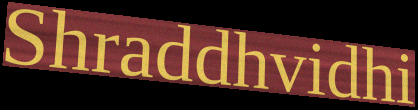
Shraddhvidhi